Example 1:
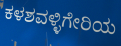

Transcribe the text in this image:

ಕಳಶವಳ್ಳಿಗೇರಿಯ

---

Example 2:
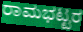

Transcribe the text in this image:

ರಾಮಭಟ್ಟರ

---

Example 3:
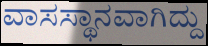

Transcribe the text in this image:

ವಾಸಸ್ಥಾನವಾಗಿದ್ದು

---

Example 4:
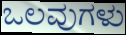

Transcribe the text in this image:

ಒಲವುಗಳು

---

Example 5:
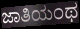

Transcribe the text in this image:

ಜಾತಿಯಂಥ